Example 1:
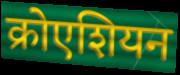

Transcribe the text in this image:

क्रोएशियन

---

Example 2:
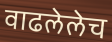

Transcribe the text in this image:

वाढलेलेच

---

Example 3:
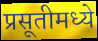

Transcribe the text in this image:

प्रसूतीमध्ये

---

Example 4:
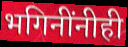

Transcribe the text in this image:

भगिनींनीही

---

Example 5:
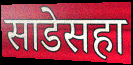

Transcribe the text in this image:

साडेसहा